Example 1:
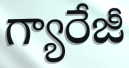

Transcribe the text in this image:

గ్యారేజీ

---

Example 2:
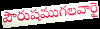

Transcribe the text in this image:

పౌరుషముగలవారై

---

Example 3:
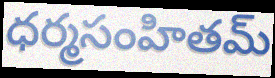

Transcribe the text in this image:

ధర్మసంహితమ్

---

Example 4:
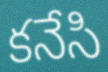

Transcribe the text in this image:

కనేసి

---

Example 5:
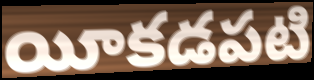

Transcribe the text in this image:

యీకడపటి